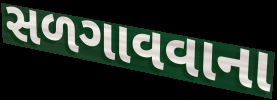
સળગાવવાના